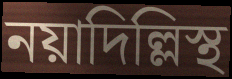
নয়াদিল্লিস্থ